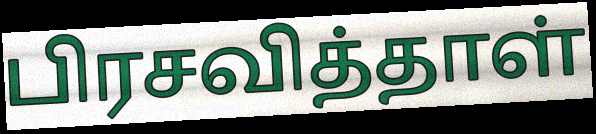
பிரசவித்தாள்